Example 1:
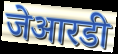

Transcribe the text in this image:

जेआरडी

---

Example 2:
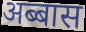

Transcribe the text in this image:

अब्बास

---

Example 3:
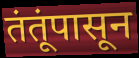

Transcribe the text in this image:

तंतूंपासून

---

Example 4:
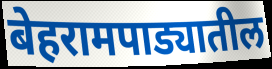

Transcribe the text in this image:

बेहरामपाड्यातील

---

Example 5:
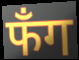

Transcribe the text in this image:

फँग